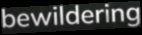
bewildering